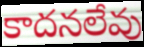
కాదనలేవు